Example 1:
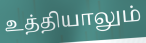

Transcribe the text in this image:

உத்தியாலும்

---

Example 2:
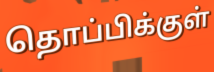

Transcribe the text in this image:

தொப்பிக்குள்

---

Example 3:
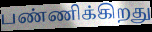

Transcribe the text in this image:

பண்ணிக்கிறது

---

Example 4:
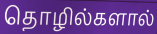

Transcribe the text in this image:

தொழில்களால்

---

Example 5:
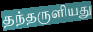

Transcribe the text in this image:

தந்தருளியது